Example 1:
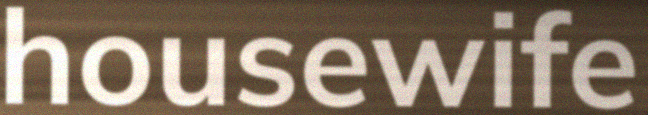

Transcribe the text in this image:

housewife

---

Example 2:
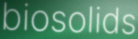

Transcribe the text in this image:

biosolids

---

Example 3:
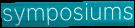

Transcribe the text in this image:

symposiums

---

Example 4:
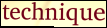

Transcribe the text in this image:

technique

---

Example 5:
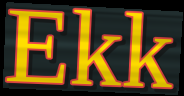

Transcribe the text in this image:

Ekk